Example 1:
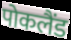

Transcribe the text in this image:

पोकलैंड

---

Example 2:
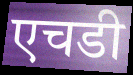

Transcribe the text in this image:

एचडी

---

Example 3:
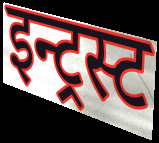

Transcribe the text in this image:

इन्ट्रस्ट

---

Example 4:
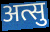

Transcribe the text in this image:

अत्सु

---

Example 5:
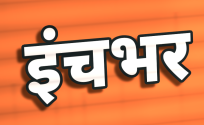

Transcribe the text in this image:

इंचभर